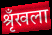
श्रृँखला